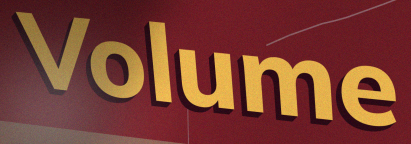
Volume